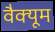
वैक्‍यूम